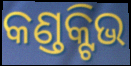
କଣ୍ଡକ୍ଟିଭ